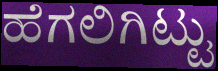
ಹೆಗಲಿಗಿಟ್ಟು